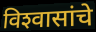
विश्‍वासांचे